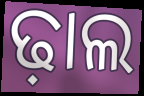
ଢ଼ାଲ